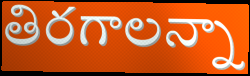
తిరగాలన్నా